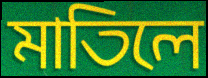
মাতিলে